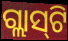
ଗ୍ଲାସ୍‍ଟି